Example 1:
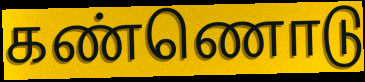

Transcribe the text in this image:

கண்ணொடு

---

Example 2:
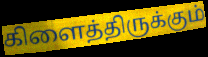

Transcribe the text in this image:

கிளைத்திருக்கும்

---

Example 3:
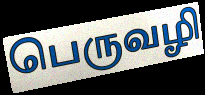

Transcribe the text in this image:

பெருவழி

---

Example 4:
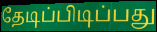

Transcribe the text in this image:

தேடிப்பிடிப்பது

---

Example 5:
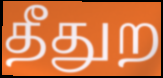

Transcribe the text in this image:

தீதுற